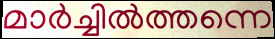
മാർച്ചിൽത്തന്നെ